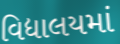
વિદ્યાલયમાં